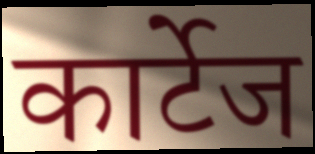
कार्टेज